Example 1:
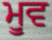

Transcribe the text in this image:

ਮੂਵ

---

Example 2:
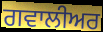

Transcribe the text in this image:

ਗਵਾਲੀਅਰ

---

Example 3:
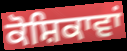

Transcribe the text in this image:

ਕੋਸ਼ਿਕਾਵਾਂ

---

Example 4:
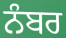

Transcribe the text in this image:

ਨੰਬਰ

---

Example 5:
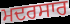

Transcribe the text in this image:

ਮਦਰਸਾਰ